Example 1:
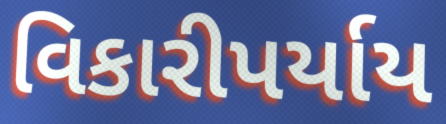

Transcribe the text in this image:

વિકારીપર્યાય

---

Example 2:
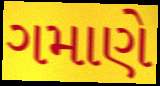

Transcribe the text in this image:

ગમાણે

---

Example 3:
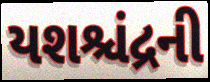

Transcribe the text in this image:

યશશ્ચંદ્રની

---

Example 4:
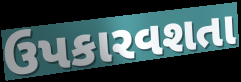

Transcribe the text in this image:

ઉપકારવશતા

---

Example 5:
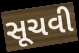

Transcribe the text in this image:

સૂચવી